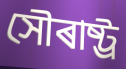
সৌৰাষ্ট্ৰ